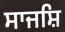
ਸਾਜਸ਼ਿ